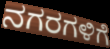
ನಗರಗಳಿಗೆ